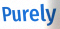
Purely